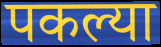
पकल्या